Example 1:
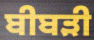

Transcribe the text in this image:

ਬੀਬੜੀ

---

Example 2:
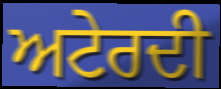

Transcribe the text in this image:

ਅਟੇਰਦੀ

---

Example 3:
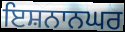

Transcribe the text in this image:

ਇਸ਼ਨਾਨਘਰ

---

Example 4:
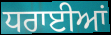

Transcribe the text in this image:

ਧਰਾਈਆਂ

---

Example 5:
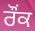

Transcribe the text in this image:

ਰੌਂਕ